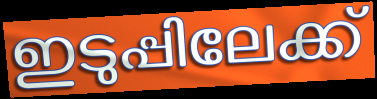
ഇടുപ്പിലേക്ക്